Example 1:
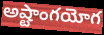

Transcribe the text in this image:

అష్టాంగయోగ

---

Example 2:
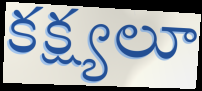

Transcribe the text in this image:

కక్ష్యలూ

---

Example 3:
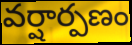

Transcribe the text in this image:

వర్షార్పణం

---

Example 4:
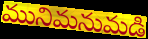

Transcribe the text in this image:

మునిమనుమడి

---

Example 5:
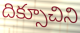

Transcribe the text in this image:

దిక్సూచిని